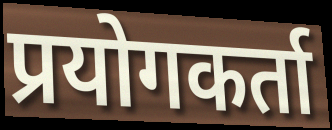
प्रयोगकर्ता